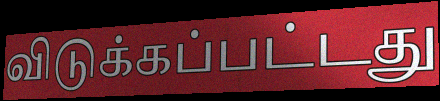
விடுக்கப்பட்டது